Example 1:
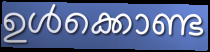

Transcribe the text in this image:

ഉൾക്കൊണ്ട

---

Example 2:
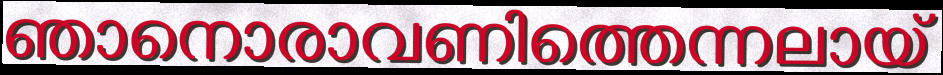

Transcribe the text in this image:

ഞാനൊരാവണിത്തെന്നലായ്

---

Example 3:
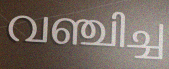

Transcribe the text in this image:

വഞ്ചിച്ച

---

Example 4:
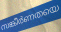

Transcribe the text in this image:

സങ്കീർണതയെ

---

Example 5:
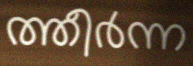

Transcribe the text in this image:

ത്തീർന്ന